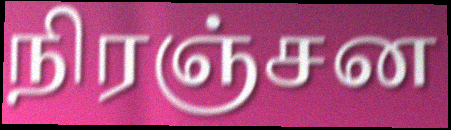
நிரஞ்சன